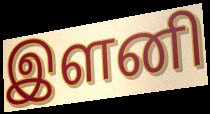
இளனி